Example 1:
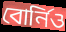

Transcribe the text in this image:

বোৰ্নিও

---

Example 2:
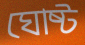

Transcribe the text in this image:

ঘোষ্ট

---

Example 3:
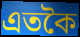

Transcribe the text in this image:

এতকৈ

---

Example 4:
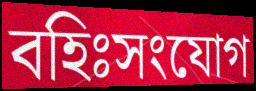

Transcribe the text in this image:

বহিঃসংযোগ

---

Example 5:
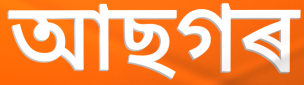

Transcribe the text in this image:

আছগৰ